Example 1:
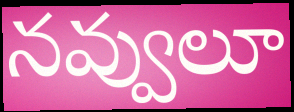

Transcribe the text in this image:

నవ్వులూ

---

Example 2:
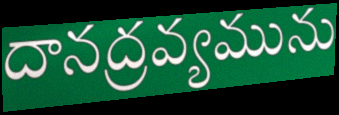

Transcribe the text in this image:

దానద్రవ్యమును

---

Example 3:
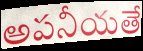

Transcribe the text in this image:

అపనీయతే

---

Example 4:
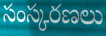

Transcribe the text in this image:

సంస్కరణలు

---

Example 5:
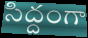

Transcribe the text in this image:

సిద్దంగా